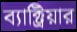
ব্যাক্ট্রিয়ার